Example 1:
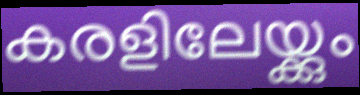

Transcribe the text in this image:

കരളിലേയ്ക്കും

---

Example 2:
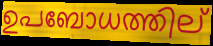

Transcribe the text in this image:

ഉപബോധത്തില്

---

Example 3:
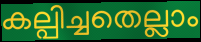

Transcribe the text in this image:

കല്പിച്ചതെല്ലാം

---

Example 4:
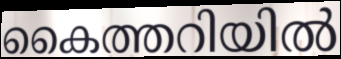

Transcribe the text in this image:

കൈത്തറിയിൽ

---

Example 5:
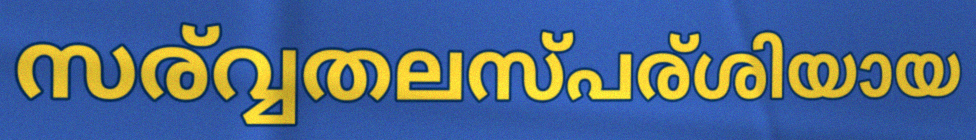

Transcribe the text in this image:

സര്വ്വതലസ്പര്ശിയായ